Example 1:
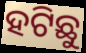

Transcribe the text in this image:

ହଟିଛୁ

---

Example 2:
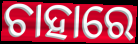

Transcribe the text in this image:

ଚାହାରେ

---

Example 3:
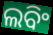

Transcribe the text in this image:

ଲବିଂ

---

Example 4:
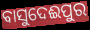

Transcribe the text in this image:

ବାସୁଦେଈପୁର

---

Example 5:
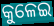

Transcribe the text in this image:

କୁଳେଇ